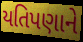
યતિપણાને